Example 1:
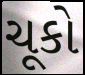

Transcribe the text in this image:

ચૂકો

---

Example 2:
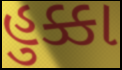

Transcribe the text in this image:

હુક્કા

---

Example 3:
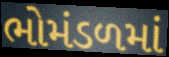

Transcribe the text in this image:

ભોમંડળમાં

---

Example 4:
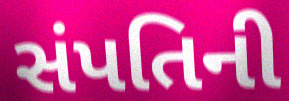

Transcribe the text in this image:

સંપતિની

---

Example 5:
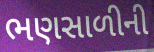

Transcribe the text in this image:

ભણસાળીની